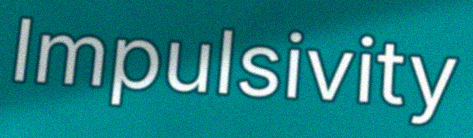
Impulsivity